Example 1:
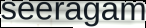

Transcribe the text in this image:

seeragam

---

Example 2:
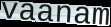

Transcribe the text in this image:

vaanam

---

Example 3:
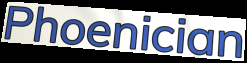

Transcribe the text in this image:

Phoenician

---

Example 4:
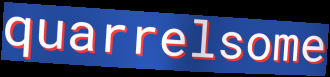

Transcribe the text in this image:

quarrelsome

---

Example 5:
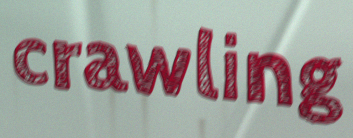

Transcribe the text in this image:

crawling